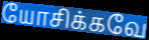
யோசிக்கவே